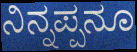
ನಿನ್ನಪ್ಪನೂ